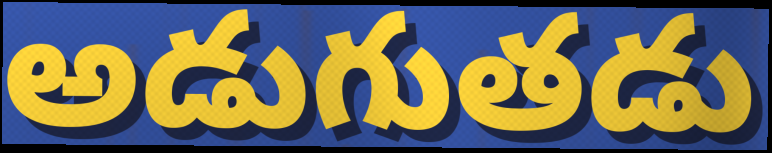
అడుగుతడు